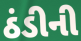
ઠંડીની